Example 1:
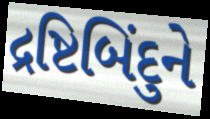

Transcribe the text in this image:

દ્રષ્ટિબિંદુને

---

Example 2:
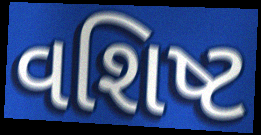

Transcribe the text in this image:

વશિષ્ટ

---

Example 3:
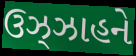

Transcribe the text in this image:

ઉઝ્ઝાહને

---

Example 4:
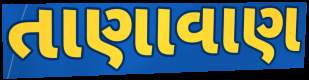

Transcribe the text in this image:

તાણાવાણ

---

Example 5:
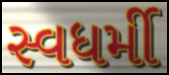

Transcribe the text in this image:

સ્વધર્મી